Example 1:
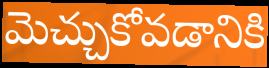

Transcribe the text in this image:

మెచ్చుకోవడానికి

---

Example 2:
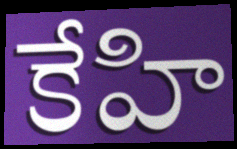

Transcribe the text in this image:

కేహి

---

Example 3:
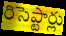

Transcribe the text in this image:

రిసెప్టార్లు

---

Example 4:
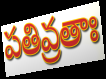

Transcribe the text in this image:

పతివ్రతాః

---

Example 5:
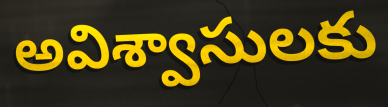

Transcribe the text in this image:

అవిశ్వాసులకు